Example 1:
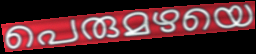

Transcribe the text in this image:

പെരുമഴയെ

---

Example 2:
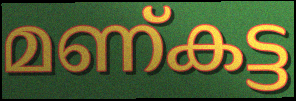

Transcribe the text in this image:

മണ്കട്ട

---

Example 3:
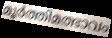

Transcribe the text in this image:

മൂർത്തിമത്ഭാവം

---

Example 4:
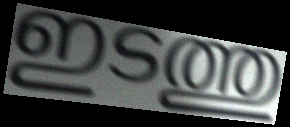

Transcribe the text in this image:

ഇടത്തു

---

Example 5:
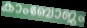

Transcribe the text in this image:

കാംബോജം